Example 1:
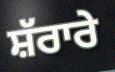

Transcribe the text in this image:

ਸ਼ੱਰਾਰੇ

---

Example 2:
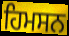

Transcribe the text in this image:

ਹਿਮਸਨ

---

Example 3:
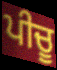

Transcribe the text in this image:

ਪੀਚੂ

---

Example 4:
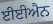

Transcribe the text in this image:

ਈਈਐਨ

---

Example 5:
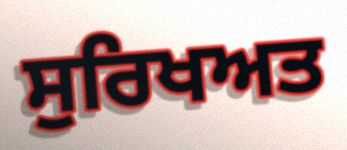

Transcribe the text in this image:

ਸੁਰਿਖਅਤ